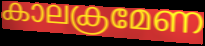
കാലക്രമേണ